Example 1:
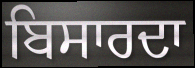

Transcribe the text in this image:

ਬਿਸਾਰਦਾ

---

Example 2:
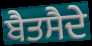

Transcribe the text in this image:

ਬੈਤਸੈਦੇ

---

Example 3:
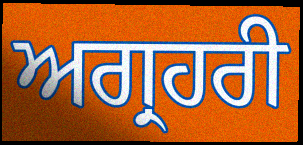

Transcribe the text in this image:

ਅਗ੍ਰਹਰੀ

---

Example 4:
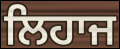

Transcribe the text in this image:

ਲਿਹਾਜ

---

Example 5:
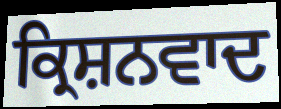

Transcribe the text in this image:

ਕ੍ਰਿਸ਼ਨਵਾਦ